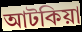
আটকিয়া